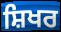
ਸ਼ਿਖਰ